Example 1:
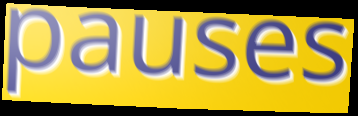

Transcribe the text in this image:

pauses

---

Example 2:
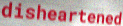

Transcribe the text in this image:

disheartened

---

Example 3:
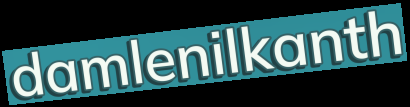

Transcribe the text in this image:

damlenilkanth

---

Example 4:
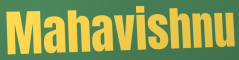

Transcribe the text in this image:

Mahavishnu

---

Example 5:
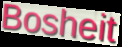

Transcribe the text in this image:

Bosheit